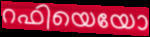
റഫിയെയോ